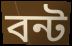
বন্ট